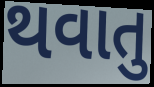
થવાતુ